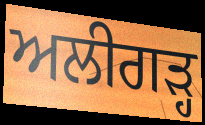
ਅਲੀਗੜ੍ਹ